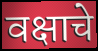
वक्षाचे